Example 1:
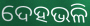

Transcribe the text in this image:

ଦେହଭଳି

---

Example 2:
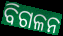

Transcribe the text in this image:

ବିଗଳନ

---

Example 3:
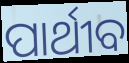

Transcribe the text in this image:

ପାର୍ଥୀବ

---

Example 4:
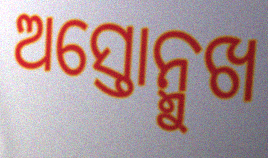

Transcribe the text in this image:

ଅସ୍ତୋନ୍ମୁଖ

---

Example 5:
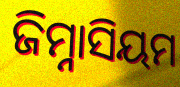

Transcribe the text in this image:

ଜିମ୍ନାସିୟମ